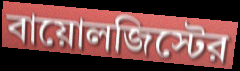
বায়োলজিস্টের